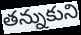
తన్నుకుని